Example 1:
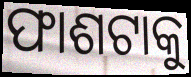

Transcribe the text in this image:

ଫାଶଟାକୁ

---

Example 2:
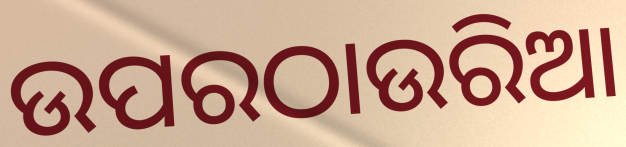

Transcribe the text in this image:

ଉପରଠାଉରିଆ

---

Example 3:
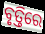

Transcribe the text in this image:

ବୃତ୍ତିରେ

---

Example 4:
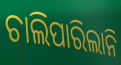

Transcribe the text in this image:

ଚାଲିପାରିଲାନି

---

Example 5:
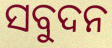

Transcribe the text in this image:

ସବୁଦନ